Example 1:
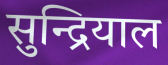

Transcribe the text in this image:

सुन्द्रियाल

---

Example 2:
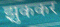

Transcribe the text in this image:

झुककर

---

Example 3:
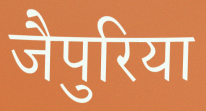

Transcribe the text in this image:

जैपुरिया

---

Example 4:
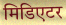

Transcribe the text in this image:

मिडिएटर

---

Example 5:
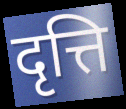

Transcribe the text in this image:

दृत्ति